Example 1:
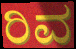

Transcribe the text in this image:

ರಿವ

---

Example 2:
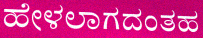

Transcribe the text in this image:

ಹೇಳಲಾಗದಂತಹ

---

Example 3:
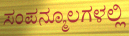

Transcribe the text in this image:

ಸಂಪನ್ಮೂಲಗಳಲ್ಲಿ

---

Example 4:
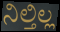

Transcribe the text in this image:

ನಿಲ್ತಿಲ್ಲ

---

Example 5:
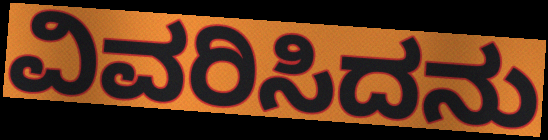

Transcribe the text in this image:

ವಿವರಿಸಿದನು